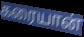
கரையான்